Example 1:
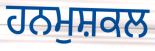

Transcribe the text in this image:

ਹਨਮੁਸ਼ਕਲ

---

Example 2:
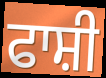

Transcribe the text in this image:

ਫਾਸ਼ੀ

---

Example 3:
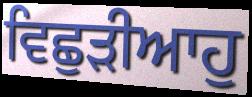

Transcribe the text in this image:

ਵਿਛੁੜੀਆਹੁ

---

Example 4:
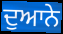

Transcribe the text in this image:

ਦੁਆਨੇ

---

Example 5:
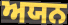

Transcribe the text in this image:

ਅਯਨ